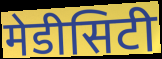
मेडीसिटी